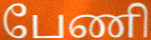
பேணி